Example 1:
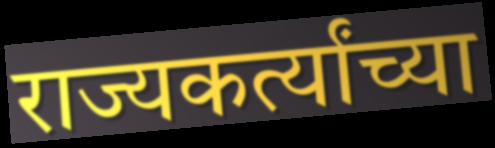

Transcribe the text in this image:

राज्यकर्त्यांच्या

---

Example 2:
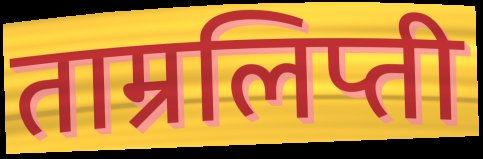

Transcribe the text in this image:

ताम्रलिप्ती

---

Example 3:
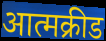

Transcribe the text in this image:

आत्मक्रीड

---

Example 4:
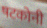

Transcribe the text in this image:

षटकोनी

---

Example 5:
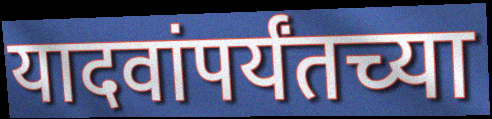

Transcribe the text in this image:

यादवांपर्यंतच्या